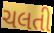
ચલતી